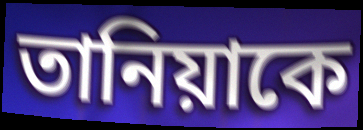
তানিয়াকে